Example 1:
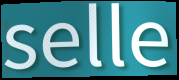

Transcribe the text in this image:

selle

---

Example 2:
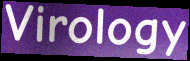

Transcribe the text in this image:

Virology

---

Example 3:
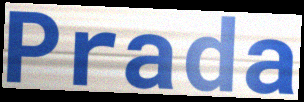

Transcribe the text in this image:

Prada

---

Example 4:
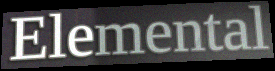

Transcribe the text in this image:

Elemental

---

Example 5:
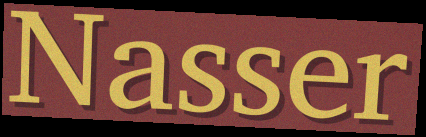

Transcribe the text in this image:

Nasser